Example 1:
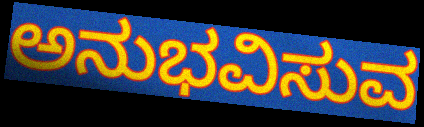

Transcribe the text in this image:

ಅನುಭವಿಸುವ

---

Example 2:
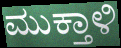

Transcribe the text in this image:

ಮುಕ್ತಾಳಿ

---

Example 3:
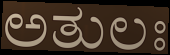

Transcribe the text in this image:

ಅತುಲಃ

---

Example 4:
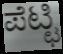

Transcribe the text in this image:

ಪೆಟ್ಟಿ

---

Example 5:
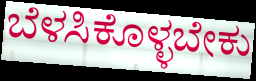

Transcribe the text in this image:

ಬೆಳಸಿಕೊಳ್ಳಬೇಕು